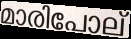
മാരിപോല്